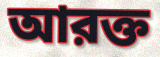
আরক্ত